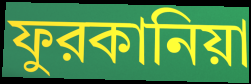
ফুরকানিয়া